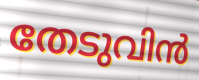
തേടുവിൻ